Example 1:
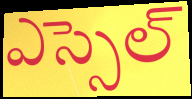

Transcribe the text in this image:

ఎస్సెల్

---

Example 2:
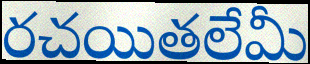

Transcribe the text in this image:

రచయితలేమీ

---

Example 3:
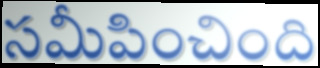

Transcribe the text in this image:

సమీపించింది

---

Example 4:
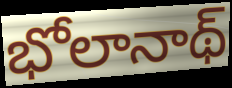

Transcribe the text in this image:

భోలానాథ్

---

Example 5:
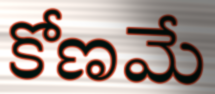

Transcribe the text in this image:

కోణమే